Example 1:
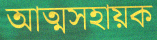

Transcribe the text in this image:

আত্মসহায়ক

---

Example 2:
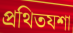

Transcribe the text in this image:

প্ৰথিতযশা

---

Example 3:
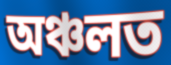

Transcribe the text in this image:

অঞ্চলত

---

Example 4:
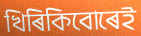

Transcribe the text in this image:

খিৰিকিবোৰেই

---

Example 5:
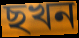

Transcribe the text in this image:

ছখন